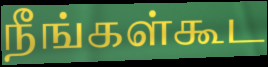
நீங்கள்கூட